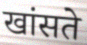
खांसते